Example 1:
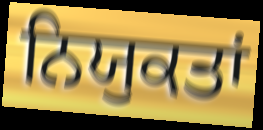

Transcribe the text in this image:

ਨਿਯੁਕਤਾਂ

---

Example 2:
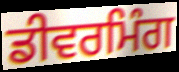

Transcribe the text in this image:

ਡੀਵਰਮਿੰਗ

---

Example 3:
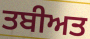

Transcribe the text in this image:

ਤਬੀਅਤ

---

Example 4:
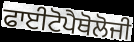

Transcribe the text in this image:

ਫਾਈਟੋਪੈਥੋਲੋਜੀ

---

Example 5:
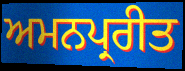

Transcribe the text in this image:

ਅਮਨਪ੍ਰਰੀਤ